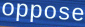
oppose